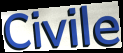
Civile